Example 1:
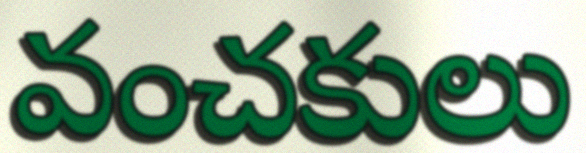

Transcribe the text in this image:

వంచకులు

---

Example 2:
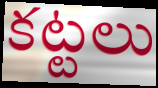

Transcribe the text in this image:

కట్టలు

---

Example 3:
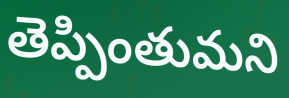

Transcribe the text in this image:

తెప్పింతుమని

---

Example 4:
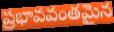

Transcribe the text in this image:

ప్రభావవంతమైన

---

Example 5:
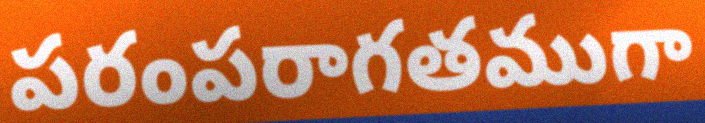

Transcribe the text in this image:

పరంపరాగతముగా